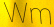
Wm